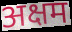
अक्षम